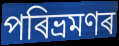
পৰিভ্ৰমণৰ